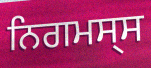
ਨਿਗਮਸ੍ਸ